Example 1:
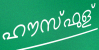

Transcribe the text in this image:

ഹൗസ്ഫുള്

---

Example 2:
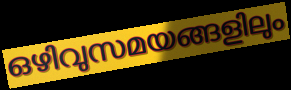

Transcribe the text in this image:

ഒഴിവുസമയങ്ങളിലും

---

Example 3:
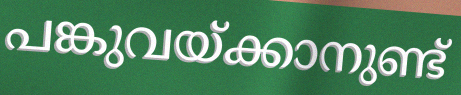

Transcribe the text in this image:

പങ്കുവയ്ക്കാനുണ്ട്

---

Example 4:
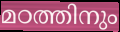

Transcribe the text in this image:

മഠത്തിനും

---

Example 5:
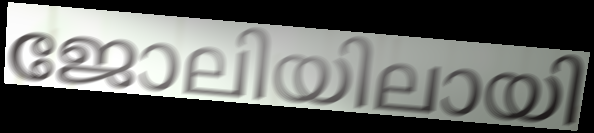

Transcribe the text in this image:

ജോലിയിലായി